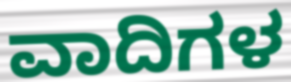
ವಾದಿಗಳ